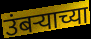
उंबऱ्याच्या